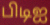
பிடிஐ